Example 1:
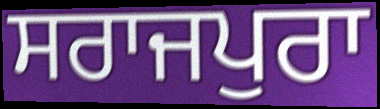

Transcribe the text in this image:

ਸਰਾਜਪੁਰਾ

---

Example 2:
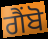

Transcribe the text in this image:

ਗੈਂਬੋ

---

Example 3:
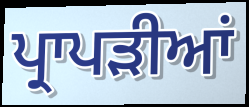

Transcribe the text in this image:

ਪ੍ਰਾਪੜੀਆਂ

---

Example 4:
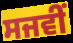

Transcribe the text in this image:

ਸਜਵੀਂ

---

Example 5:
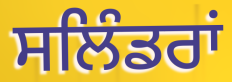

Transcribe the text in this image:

ਸਲਿੰਡਰਾਂ